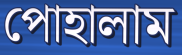
পোহালাম